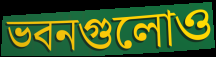
ভবনগুলোও